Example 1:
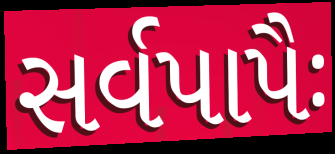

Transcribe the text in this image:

સર્વપાપૈઃ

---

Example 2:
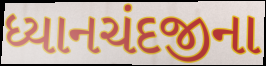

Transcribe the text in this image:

ધ્યાનચંદજીના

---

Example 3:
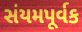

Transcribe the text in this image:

સંયમપૂર્વક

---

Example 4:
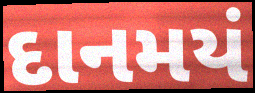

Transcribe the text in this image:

દાનમયં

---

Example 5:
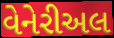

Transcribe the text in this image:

વેનેરીઅલ